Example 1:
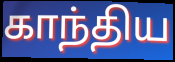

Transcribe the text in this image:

காந்திய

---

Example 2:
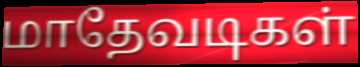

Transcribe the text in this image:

மாதேவடிகள்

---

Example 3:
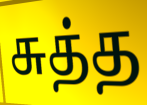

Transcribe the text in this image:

சுத்த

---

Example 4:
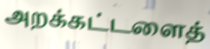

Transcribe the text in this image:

அறக்கட்டளைத்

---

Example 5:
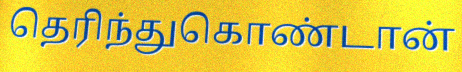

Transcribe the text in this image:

தெரிந்துகொண்டான்